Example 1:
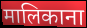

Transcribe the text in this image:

मालिकाना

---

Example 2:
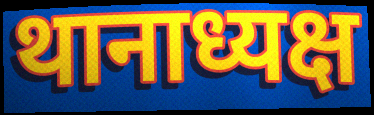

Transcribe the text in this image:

थानाध्यक्ष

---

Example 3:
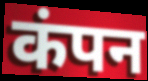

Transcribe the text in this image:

कंपन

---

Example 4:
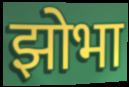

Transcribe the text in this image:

झोभा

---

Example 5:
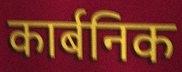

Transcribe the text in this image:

कार्बनिक